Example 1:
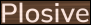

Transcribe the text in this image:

Plosive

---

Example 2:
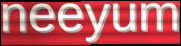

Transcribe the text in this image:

neeyum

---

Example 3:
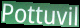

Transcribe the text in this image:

Pottuvil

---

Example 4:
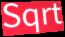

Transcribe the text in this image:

Sqrt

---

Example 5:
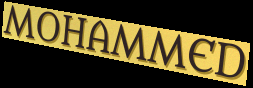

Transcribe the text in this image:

MOHAMMED